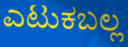
ಎಟುಕಬಲ್ಲ